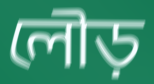
লৌড়